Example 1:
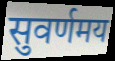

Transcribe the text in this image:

सुवर्णमय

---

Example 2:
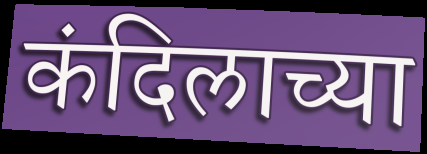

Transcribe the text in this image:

कंदिलाच्या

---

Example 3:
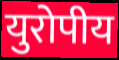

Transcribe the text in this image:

युरोपीय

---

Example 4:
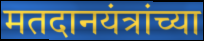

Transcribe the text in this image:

मतदानयंत्रांच्या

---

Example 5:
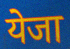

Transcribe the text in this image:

येजा